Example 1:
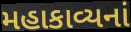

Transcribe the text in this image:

મહાકાવ્યનાં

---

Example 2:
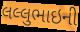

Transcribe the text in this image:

લલ્લુભાઇની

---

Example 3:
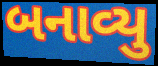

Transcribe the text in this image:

બનાવ્યુ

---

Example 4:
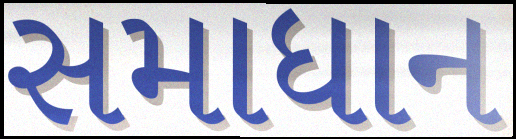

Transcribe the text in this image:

સમાધાન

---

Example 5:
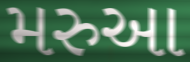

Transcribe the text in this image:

મરુઆ